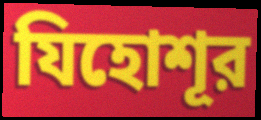
যিহোশূর